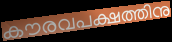
കൗരവപക്ഷത്തിനു